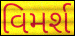
વિમર્શ